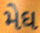
મેઘ